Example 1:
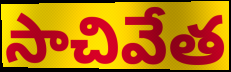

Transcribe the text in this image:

సాచివేత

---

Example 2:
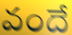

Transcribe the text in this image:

వందే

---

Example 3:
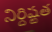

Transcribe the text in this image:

నిర్దిష్టత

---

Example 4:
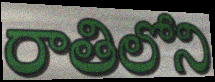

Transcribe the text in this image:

రాతిలోని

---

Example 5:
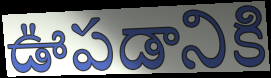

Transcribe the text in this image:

ఊపడానికి